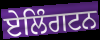
ਏਲਿੰਗਟਨ